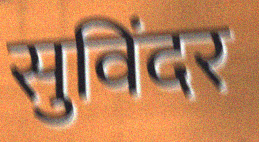
सुविंदर